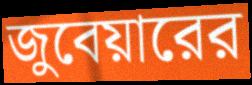
জুবেয়ারের